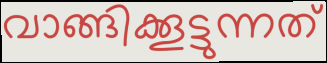
വാങ്ങിക്കൂട്ടുന്നത്